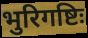
भुरिगष्टिः